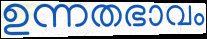
ഉന്നതഭാവം